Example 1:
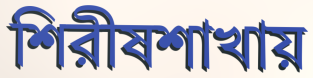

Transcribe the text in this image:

শিরীষশাখায়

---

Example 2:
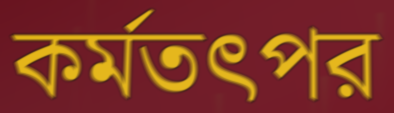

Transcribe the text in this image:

কর্মতৎপর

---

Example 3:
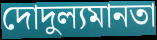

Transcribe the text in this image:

দোদুল্যমানতা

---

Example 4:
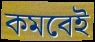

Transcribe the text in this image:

কমবেই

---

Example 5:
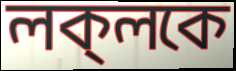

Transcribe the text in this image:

লক্‌লকে